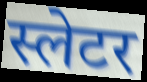
स्लेटर